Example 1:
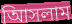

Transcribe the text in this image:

আিসলাম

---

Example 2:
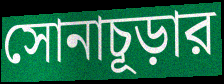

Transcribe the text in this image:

সোনাচূড়ার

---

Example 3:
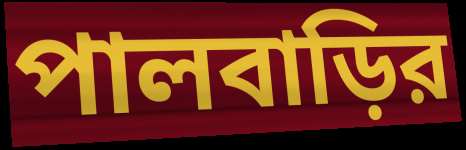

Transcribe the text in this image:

পালবাড়ির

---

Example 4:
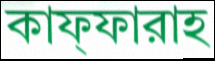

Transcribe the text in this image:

কাফ্ফারাহ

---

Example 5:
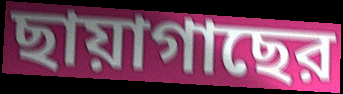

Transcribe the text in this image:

ছায়াগাছের